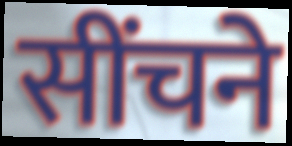
सींचने